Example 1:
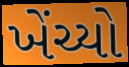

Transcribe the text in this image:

ખેંચ્યો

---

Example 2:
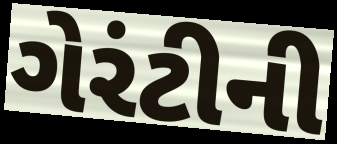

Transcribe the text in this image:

ગેરંટીની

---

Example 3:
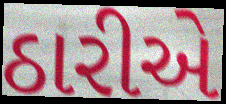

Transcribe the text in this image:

ઠારીએ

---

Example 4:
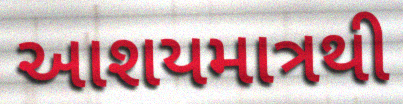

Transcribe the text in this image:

આશયમાત્રથી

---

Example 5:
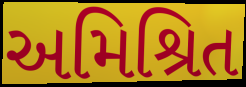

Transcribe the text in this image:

અમિશ્રિત